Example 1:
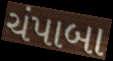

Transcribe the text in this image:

ચંપાબા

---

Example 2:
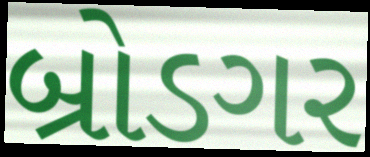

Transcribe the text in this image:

બ્રોડગર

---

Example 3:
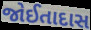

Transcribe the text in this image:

જોઈતાદાસ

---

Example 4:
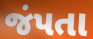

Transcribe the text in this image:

જંપતા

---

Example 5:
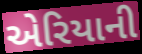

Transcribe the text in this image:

એરિયાની